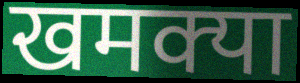
खमक्या